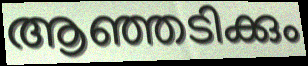
ആഞ്ഞടിക്കും